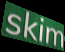
skim